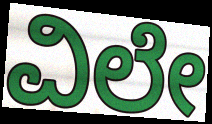
ವಿಲೇ